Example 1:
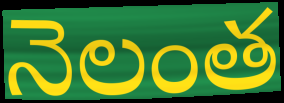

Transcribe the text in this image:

నెలంత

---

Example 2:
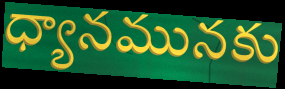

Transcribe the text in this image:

ధ్యానమునకు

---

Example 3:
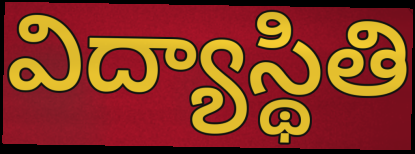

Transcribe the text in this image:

విద్యాస్థితి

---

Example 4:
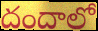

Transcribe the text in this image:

దందాలో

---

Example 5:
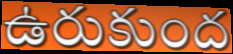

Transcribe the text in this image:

ఉరుకుంద